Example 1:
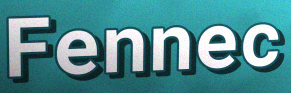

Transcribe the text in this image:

Fennec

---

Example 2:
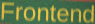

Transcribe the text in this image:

Frontend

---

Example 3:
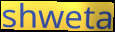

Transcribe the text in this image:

shweta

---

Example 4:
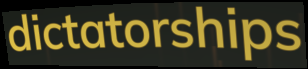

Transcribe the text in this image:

dictatorships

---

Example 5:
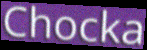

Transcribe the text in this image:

Chocka